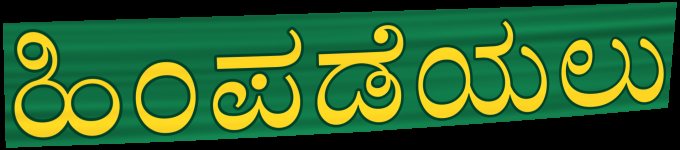
ಹಿಂಪಡೆಯಲು